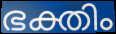
ഭക്തിം